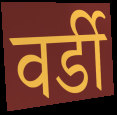
वर्डी